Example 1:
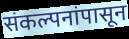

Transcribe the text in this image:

संकल्पनांपासून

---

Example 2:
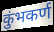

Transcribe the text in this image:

कुंभकर्ण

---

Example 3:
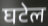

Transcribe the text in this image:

घटेल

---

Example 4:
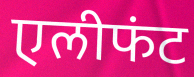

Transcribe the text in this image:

एलीफंट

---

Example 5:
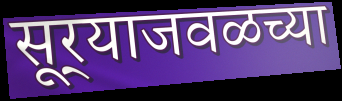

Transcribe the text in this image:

सूर्याजवळच्या